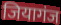
जियागंज